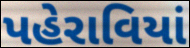
પહેરાવિયાં